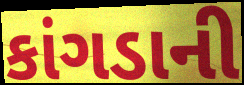
કાંગડાની